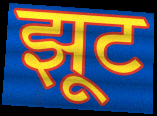
झूट